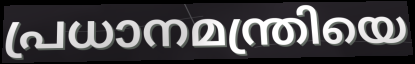
പ്രധാനമന്ത്രിയെ